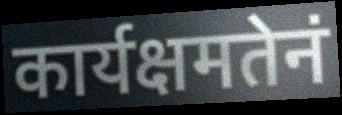
कार्यक्षमतेनं